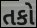
તકો